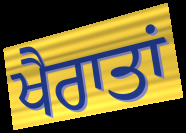
ਖੈਰਾਤਾਂ